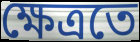
ক্ষেত্ৰতে